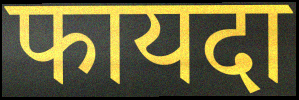
फायदा